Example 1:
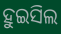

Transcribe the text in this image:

ହୁଇସିଲ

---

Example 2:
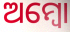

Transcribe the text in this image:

ଅମ୍ୱୋ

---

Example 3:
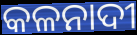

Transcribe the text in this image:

କଳନାଦୀ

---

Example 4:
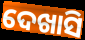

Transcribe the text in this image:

ଦେଖାସି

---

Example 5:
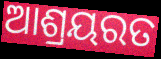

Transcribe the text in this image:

ଆଶ୍ରୟରତ